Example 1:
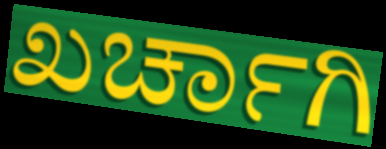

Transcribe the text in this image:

ಖರ್ಚಾಗಿ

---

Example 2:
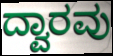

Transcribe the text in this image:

ದ್ವಾರವು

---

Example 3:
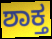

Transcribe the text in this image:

ಶಾಕ್ತ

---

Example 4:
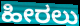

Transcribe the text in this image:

ಹೀರಲು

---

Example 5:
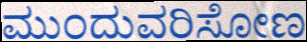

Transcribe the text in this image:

ಮುಂದುವರಿಸೋಣ